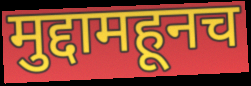
मुद्दामहूनच